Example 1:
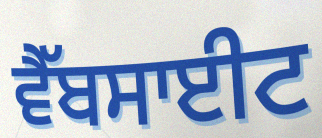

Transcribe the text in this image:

ਵੈੱਬਸਾਈਟ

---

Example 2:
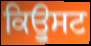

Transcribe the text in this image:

ਕਿਊਸਟ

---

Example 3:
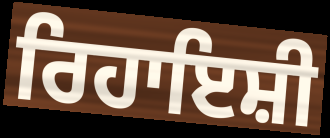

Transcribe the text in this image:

ਰਿਹਾਇਸ਼ੀ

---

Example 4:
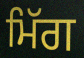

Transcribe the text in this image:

ਮਿੱਗ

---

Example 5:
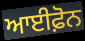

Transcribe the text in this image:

ਆਈਫ਼ੋਨ